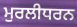
ਮੁਰਲੀਧਰਨ